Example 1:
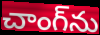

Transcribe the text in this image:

చాంగ్‌ను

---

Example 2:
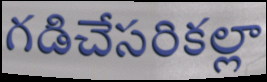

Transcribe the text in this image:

గడిచేసరికల్లా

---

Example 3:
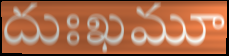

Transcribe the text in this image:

దుఃఖమూ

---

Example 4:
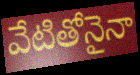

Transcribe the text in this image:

వేటితోనైనా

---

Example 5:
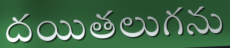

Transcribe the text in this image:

దయితలుగను